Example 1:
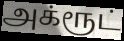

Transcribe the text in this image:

அக்ரூட்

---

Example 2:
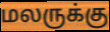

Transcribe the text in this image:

மலருக்கு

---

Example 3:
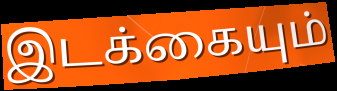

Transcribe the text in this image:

இடக்கையும்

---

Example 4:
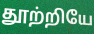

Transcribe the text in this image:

தூற்றியே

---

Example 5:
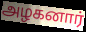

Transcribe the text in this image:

அழகனார்